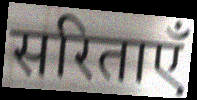
सरिताएँ